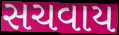
સચવાય